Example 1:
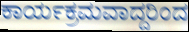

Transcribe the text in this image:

ಕಾರ್ಯಕ್ರಮವಾದ್ದರಿಂದ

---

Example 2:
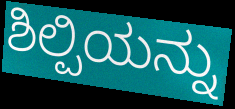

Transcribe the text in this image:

ಶಿಲ್ಪಿಯನ್ನು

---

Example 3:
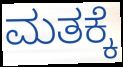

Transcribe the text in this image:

ಮತಕ್ಕೆ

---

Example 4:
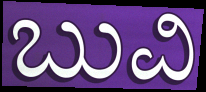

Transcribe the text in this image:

ಬುವಿ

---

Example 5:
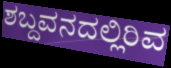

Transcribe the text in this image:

ಶಬ್ದವನದಲ್ಲಿರಿವ